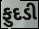
ફુદડી